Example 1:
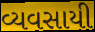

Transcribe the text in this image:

વ્યવસાયી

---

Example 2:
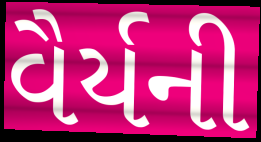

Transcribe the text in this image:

વૈર્યની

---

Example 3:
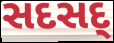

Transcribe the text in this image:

સદસદ્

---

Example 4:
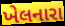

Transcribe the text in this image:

ખેલનારા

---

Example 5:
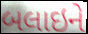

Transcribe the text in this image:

બલાઇને